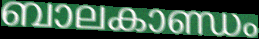
ബാലകാണ്ഡം